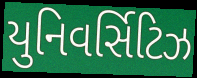
યુનિવર્સિટિઝ